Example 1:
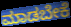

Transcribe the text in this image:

ಮಾಡಬೇಕೆ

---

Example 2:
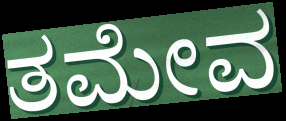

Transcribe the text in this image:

ತಮೇವ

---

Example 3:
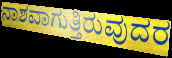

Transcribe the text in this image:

ನಾಶವಾಗುತ್ತಿರುವುದರ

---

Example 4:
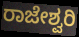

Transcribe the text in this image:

ರಾಜೇಶ್ವರಿ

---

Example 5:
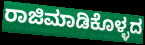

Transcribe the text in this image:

ರಾಜಿಮಾಡಿಕೊಳ್ಳದ